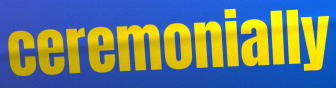
ceremonially